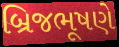
બ્રિજભૂષણે